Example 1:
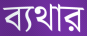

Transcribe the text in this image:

ব্যথার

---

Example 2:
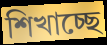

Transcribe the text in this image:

শিখাচ্ছে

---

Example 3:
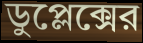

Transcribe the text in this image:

ডুপ্লেক্সের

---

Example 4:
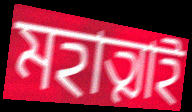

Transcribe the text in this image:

মহাত্মাই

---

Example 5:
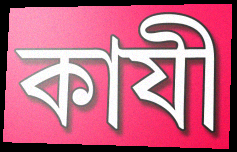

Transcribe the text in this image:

কাযী